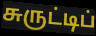
சுருட்டிப்